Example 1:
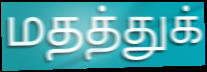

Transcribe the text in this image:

மதத்துக்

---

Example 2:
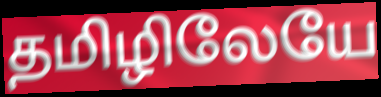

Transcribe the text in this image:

தமிழிலேயே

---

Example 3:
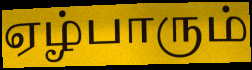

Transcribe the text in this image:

ஏழ்பாரும்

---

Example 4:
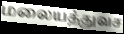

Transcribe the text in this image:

மலையத்துவச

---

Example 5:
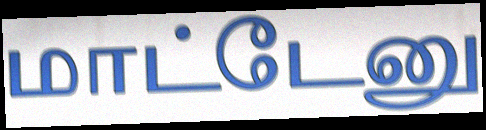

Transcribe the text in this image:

மாட்டேனு